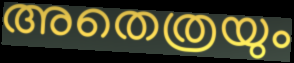
അതെത്രയും